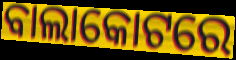
ବାଲାକୋଟରେ